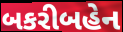
બકરીબહેન